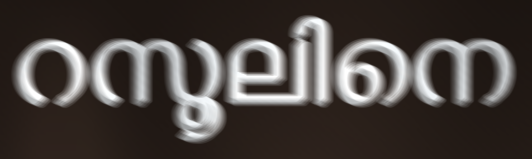
റസൂലിനെ